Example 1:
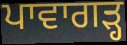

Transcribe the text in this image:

ਪਾਵਾਗੜ੍ਹ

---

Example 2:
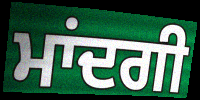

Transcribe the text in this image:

ਮਾਂਦਗੀ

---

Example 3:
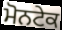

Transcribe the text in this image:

ਮੋਨਟੇਕ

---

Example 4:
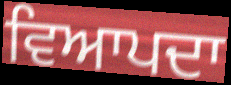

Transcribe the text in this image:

ਵਿਆਪਦਾ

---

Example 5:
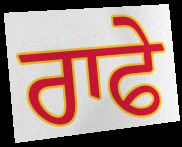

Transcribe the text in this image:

ਰਾਫੇ